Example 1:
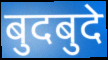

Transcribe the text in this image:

बुदबुदे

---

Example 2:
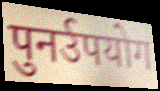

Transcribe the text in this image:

पुनर्उपयोग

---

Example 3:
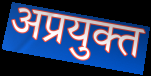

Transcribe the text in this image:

अप्रयुक्त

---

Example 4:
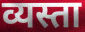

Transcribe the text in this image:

व्यस्ता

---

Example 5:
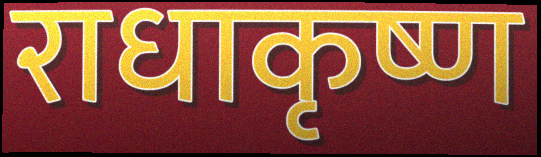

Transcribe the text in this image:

राधाकृष्ण